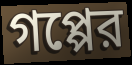
গপ্পের